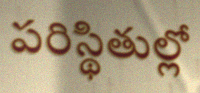
పరిస్థితుల్లో